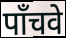
पाँचवे